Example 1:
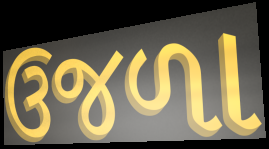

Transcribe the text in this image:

ઉજળા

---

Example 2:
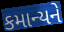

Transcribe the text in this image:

કમાન્યને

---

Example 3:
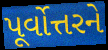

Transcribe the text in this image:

પૂર્વોત્તરને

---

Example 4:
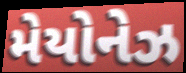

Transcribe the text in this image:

મેયોનેઝ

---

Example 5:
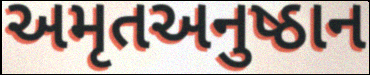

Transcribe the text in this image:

અમૃતઅનુષ્ઠાન